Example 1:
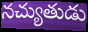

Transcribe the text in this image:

నచ్యుతుడు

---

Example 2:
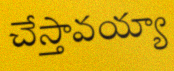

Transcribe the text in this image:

చేస్తావయ్యా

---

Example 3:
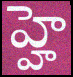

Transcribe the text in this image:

హ్హె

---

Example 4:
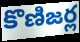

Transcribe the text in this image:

కొణిజర్ల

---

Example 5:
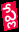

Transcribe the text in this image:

ప్లే